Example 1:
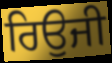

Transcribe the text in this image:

ਰਿਉਜੀ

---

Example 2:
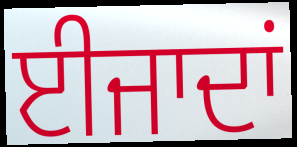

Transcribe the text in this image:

ਈਜਾਦਾਂ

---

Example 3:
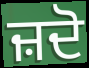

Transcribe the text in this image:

ਜ਼ਦੋ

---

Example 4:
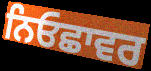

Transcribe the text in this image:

ਨਿਓਛਾਵਰ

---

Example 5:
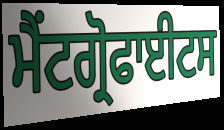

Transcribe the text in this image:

ਮੈਂਟਗ੍ਰੋਫਾਈਟਸ